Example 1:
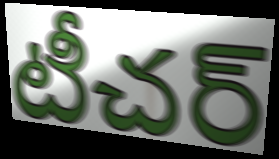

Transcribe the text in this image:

టీచర్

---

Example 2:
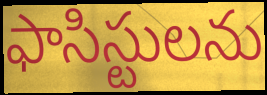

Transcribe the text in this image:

ఫాసిస్టులను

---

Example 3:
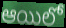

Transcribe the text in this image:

ఆయిలో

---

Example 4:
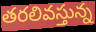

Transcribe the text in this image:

తరలివస్తున్న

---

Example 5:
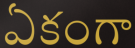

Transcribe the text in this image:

ఏకంగా